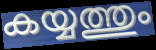
കയ്യത്തും